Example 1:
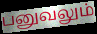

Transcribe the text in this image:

பனுவலும்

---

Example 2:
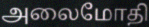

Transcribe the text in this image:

அலைமோதி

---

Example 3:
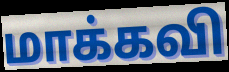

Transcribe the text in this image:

மாக்கவி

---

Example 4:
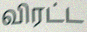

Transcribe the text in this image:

விரட்ட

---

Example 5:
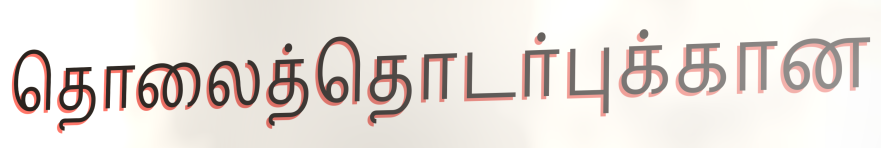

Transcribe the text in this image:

தொலைத்தொடர்புக்கான